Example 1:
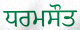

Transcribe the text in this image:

ਧਰਮਸੌਤ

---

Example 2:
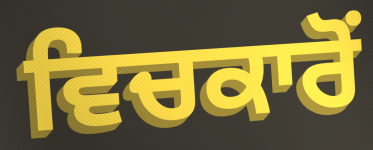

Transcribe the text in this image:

ਵਿਚਕਾਰੋਂ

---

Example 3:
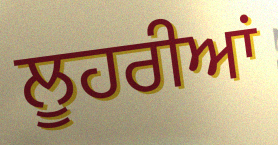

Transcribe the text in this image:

ਲੂਹਰੀਆਂ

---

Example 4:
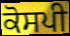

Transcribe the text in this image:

ਕੋਸਪੀ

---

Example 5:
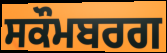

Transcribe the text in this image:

ਸਕੌਮਬਰਗ